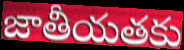
జాతీయతకు